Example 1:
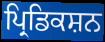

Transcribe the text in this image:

ਪ੍ਰਿਡਿਕਸ਼ਨ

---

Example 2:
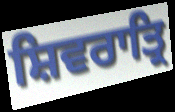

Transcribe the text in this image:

ਸ਼ਿਵਰਾਤ੍ਰਿ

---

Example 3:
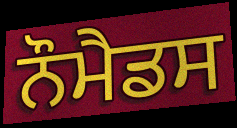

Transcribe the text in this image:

ਨੌਮੈਡਸ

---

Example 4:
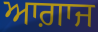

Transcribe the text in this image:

ਆਗ਼ਾਜ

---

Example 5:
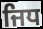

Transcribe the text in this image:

ਜਿਧ